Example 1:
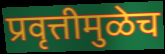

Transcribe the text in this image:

प्रवृत्तीमुळेच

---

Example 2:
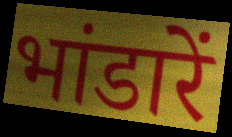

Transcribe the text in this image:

भांडारें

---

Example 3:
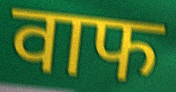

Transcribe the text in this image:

वाफ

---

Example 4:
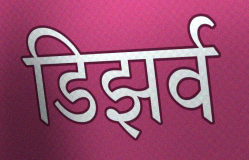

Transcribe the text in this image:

डिझर्व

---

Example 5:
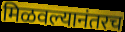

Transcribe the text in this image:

मिळवल्यानंतरच